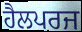
ਹੈਲਪਰਜ